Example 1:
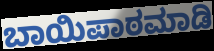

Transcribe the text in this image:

ಬಾಯಿಪಾಠಮಾಡಿ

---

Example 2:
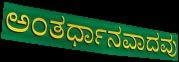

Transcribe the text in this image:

ಅಂತರ್ಧಾನವಾದವು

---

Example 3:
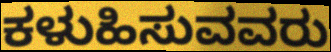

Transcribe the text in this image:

ಕಳುಹಿಸುವವರು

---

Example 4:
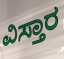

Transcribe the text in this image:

ವಿಸ್ತಾರ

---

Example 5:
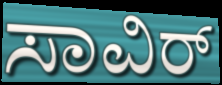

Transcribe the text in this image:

ಸಾವಿರ್